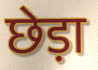
छेड़ा